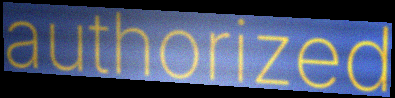
authorized